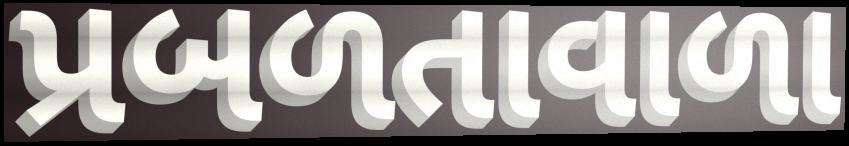
પ્રબળતાવાળા